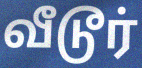
வீடூர்